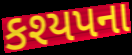
કશ્યપના